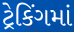
ટ્રેકિંગમાં